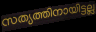
സത്യത്തിനായിട്ടല്ല